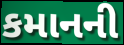
કમાનની